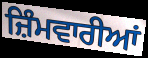
ਜ਼ਿੰਮਵਾਰੀਆਂ